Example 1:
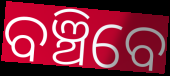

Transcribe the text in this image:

ବଞ୍ଚିବେ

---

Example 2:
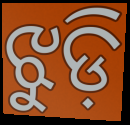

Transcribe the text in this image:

ଝୁଡ଼ି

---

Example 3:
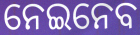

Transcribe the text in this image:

ନେଇନେବ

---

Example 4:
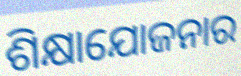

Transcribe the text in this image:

ଶିକ୍ଷାଯୋଜନାର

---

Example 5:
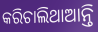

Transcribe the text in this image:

କରିଚାଲିଥାଆନ୍ତି